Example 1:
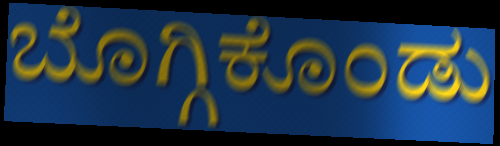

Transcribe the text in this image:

ಬೊಗ್ಗಿಕೊಂಡು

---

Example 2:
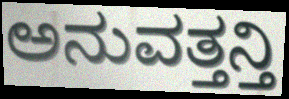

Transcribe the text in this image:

ಅನುವತ್ತನ್ತಿ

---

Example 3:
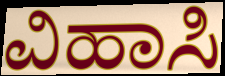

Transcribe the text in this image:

ವಿಹಾಸಿ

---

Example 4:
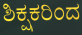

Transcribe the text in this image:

ಶಿಕ್ಷಕರಿಂದ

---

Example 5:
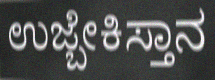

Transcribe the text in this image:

ಉಜ್ಬೇಕಿಸ್ತಾನ